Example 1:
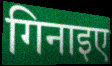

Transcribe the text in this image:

गिनाइए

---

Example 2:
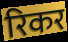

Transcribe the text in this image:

रिकर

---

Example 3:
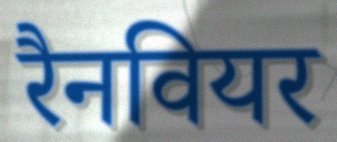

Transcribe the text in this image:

रैनवियर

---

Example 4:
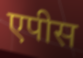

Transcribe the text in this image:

एपीस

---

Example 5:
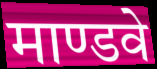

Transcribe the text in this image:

माण्डवे